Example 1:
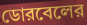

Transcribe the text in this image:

ডোরবেলের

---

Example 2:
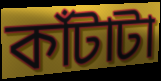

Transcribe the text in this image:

কাঁটাটা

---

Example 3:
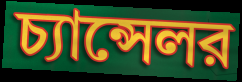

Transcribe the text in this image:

চ্যান্সেলর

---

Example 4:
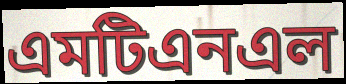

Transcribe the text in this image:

এমটিএনএল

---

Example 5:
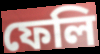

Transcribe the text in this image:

ফেলি